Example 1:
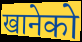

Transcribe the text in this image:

खानेको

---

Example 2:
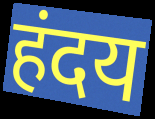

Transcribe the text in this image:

हंदय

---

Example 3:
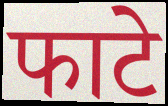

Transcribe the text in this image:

फाटे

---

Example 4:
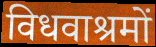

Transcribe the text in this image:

विधवाश्रमों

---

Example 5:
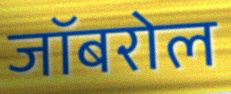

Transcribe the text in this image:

जॉबरोल